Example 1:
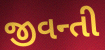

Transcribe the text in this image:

જીવન્તી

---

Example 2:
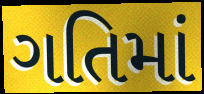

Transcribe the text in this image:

ગતિમાં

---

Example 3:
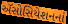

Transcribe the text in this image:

ઍસોસિયેશનનાં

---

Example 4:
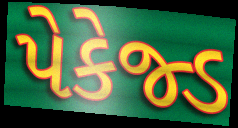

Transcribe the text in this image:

પેકેજ્ડ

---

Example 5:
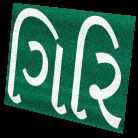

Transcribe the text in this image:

ગિરિ